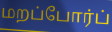
மறப்போர்ப்